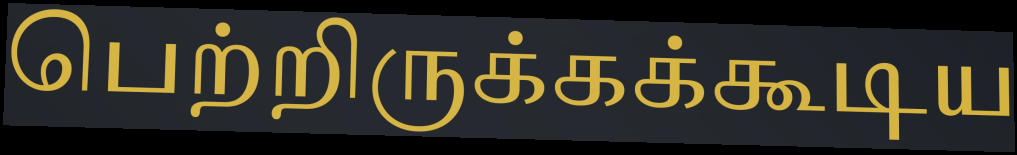
பெற்றிருக்கக்கூடிய